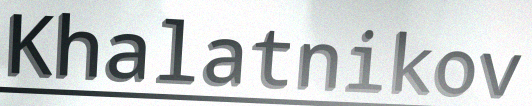
Khalatnikov